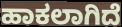
ಹಾಕಲಾಗಿದೆ